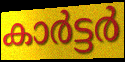
കാർട്ടർ